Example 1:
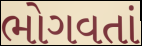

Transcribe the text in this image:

ભોગવતાં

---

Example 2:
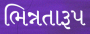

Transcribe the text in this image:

ભિન્નતારૂપ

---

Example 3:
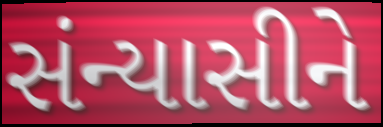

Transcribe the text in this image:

સંન્યાસીને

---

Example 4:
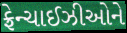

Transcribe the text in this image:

ફ્રેન્ચાઈઝીઓને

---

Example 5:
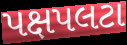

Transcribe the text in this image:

પક્ષપલટા